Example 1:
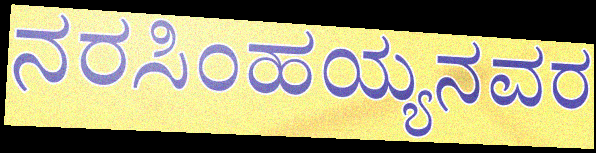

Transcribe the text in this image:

ನರಸಿಂಹಯ್ಯನವರ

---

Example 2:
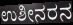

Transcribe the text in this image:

ಉಶೀನರನ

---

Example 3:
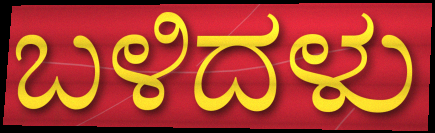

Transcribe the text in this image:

ಬಳಿದಳು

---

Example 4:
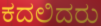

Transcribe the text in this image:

ಕದಲಿದರು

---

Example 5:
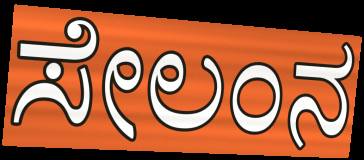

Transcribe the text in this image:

ಸೇಲಂನ